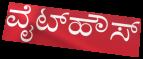
ವೈಟ್‌ಹೌಸ್